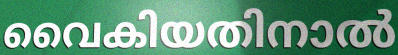
വൈകിയതിനാൽ